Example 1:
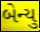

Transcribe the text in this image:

બેન્યુ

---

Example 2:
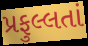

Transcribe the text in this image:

પ્રફુલ્લતાં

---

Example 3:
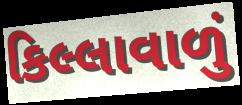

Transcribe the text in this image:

કિલ્લાવાળું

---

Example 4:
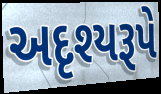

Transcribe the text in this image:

અદૃશ્યરૂપે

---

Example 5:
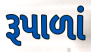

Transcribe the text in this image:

રૂપાળાં